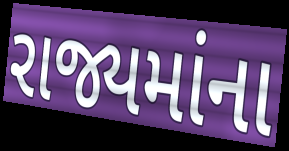
રાજ્યમાંના